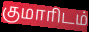
குமாரிடம்